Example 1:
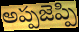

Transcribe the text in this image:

అప్పజెప్పి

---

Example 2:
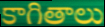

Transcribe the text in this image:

కాగితాలు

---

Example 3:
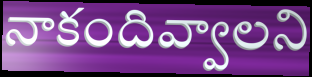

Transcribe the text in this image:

నాకందివ్వాలని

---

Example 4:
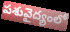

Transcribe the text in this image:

పశువైద్యంలో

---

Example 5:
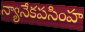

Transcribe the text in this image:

న్యానేకపసింహ